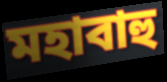
মহাবাহু